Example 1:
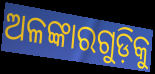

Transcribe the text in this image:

ଅଳଙ୍କାରଗୁଡ଼ିକୁ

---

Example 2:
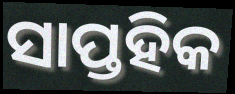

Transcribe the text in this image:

ସାପ୍ତହିକ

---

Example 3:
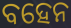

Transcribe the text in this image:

ବହେନ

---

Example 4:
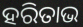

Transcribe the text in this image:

ହରିତାଭ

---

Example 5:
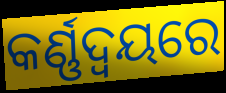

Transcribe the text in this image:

କର୍ଣ୍ଣଦ୍ୱୟରେ